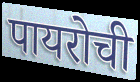
पायरोची